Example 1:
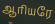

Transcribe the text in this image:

ஆரியரே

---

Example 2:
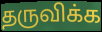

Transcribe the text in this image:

தருவிக்க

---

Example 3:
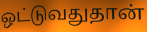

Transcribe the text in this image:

ஒட்டுவதுதான்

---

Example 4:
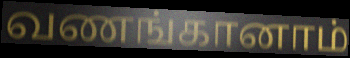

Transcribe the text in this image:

வணங்கானாம்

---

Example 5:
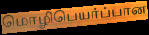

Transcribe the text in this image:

மொழிபெயர்ப்பான